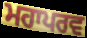
ਮਹਾਪਰਵ